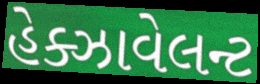
હેક્ઝાવેલન્ટ